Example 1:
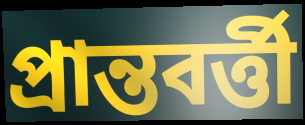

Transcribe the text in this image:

প্রান্তবর্ত্তী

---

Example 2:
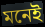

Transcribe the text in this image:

মনেই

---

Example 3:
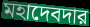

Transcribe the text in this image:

মহাদেবদার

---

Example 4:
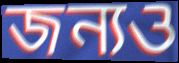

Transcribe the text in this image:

জন্যও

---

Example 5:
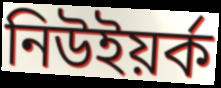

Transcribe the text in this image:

নিউইয়র্ক